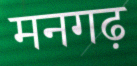
मनगढ़